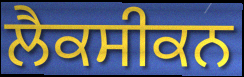
ਲੈਕਸੀਕਨ